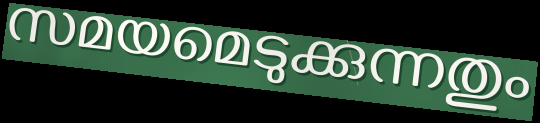
സമയമെടുക്കുന്നതും